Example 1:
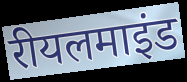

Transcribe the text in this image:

रीयलमाइंड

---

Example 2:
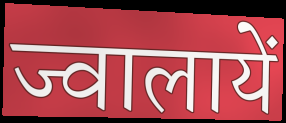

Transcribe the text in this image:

ज्वालायें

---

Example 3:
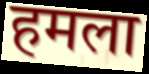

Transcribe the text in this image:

हमला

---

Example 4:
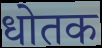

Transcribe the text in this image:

धोतक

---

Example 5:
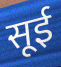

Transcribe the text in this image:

सूई